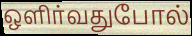
ஒளிர்வதுபோல்